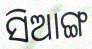
ସିଆଙ୍ଗ